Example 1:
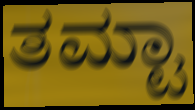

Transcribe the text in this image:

ತಮ್ಟಾ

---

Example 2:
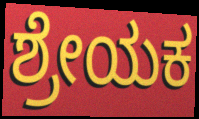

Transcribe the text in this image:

ಶ್ರೇಯಕ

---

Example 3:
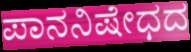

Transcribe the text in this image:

ಪಾನನಿಷೇಧದ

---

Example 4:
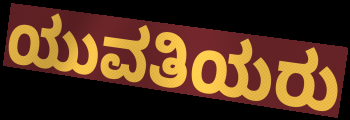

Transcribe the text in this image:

ಯುವತಿಯರು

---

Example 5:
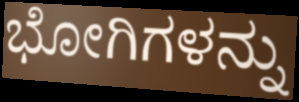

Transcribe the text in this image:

ಭೋಗಿಗಳನ್ನು